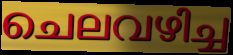
ചെലവഴിച്ച